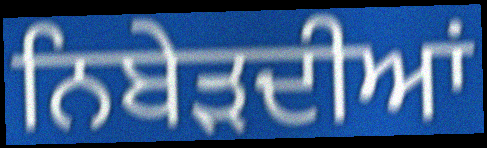
ਨਿਬੇੜਦੀਆਂ